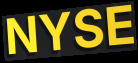
NYSE